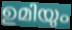
ഉമിയും